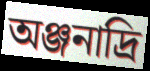
অঞ্জনাদ্রি